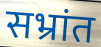
सभ्रांत